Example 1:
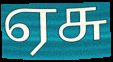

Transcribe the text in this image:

ஏசு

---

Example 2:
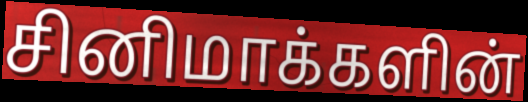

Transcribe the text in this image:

சினிமாக்களின்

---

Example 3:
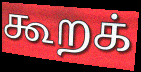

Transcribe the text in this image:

கூறக்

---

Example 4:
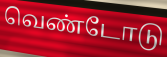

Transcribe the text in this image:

வெண்டோடு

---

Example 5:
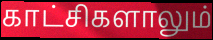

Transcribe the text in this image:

காட்சிகளாலும்